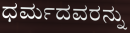
ಧರ್ಮದವರನ್ನು